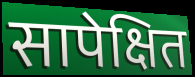
सापेक्षित